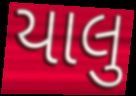
યાલુ